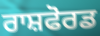
ਰਾਸ਼ਫੋਰਡ